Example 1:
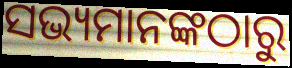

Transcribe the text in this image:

ସଭ୍ୟମାନଙ୍କଠାରୁ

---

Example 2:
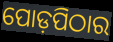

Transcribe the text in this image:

ପୋଡ଼ପିଠାର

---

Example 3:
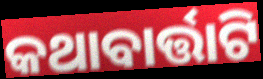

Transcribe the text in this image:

କଥାବାର୍ତ୍ତାଟି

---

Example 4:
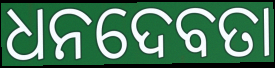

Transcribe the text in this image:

ଧନଦେବତା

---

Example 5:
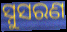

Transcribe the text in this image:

ସ୍ନୁସରଣ